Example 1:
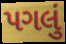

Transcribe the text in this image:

પગલું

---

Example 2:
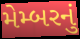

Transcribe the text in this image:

મેમ્બરનું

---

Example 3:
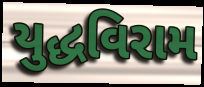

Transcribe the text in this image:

યુદ્ધવિરામ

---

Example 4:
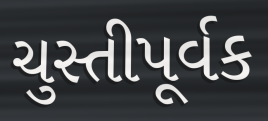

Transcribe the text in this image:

ચુસ્તીપૂર્વક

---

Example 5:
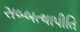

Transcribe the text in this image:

સબ્બત્થાપીતિ